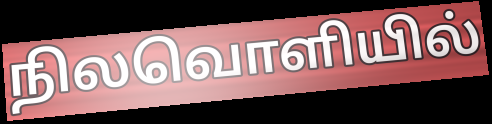
நிலவொளியில்